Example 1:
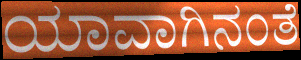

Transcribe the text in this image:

ಯಾವಾಗಿನಂತೆ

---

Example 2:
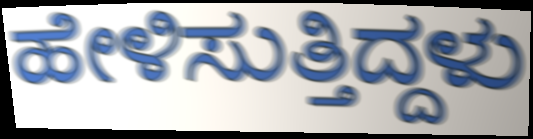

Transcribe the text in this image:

ಹೇಳಿಸುತ್ತಿದ್ದಳು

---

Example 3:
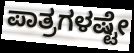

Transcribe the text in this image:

ಪಾತ್ರಗಳಷ್ಟೇ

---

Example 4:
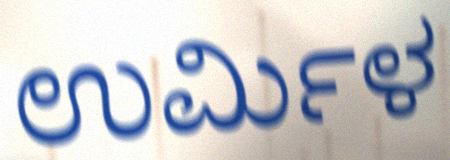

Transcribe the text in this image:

ಉರ್ಮಿಳ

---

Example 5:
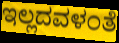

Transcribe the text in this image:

ಇಲ್ಲದವಳಂತೆ